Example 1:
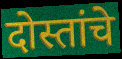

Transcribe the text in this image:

दोस्तांचे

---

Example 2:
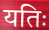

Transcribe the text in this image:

यतिः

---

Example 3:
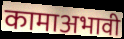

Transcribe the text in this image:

कामाअभावी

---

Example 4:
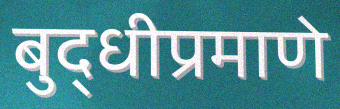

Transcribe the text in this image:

बुद्धीप्रमाणे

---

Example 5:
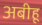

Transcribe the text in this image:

अबीहू